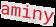
aminy